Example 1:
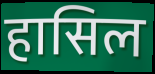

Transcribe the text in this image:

हासिल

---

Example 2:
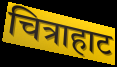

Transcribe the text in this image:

चित्राहाट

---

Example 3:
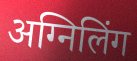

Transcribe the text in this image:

अग्निलिंग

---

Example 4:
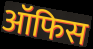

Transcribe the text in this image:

ऑफिस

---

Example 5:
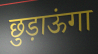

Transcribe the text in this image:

छुड़ाऊंगा